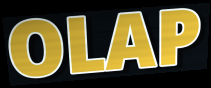
OLAP